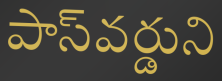
పాస్‌వర్డుని